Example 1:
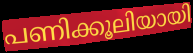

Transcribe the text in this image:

പണിക്കൂലിയായി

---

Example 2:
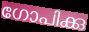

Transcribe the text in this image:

ഗോപിക്കു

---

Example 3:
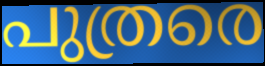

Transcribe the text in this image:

പുത്രരെ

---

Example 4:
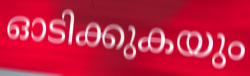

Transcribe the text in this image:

ഓടിക്കുകയും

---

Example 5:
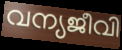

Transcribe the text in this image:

വന്യജീവി